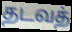
தடவத்